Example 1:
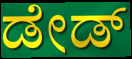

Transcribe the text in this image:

ಡೇಡ್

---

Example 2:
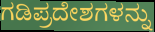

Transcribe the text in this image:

ಗಡಿಪ್ರದೇಶಗಳನ್ನು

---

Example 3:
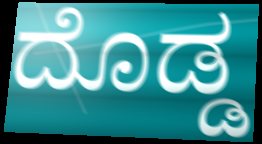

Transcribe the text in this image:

ದೊಡ್ಡ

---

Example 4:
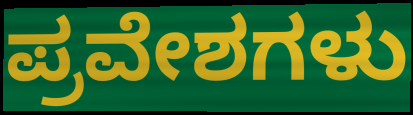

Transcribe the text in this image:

ಪ್ರವೇಶಗಳು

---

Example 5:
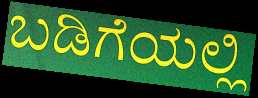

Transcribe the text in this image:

ಬಡಿಗೆಯಲ್ಲಿ